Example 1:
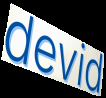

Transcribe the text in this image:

devid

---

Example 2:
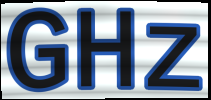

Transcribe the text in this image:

GHz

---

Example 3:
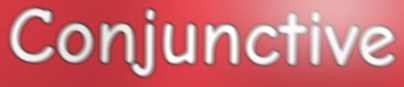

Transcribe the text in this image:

Conjunctive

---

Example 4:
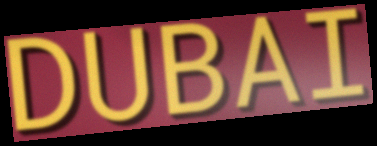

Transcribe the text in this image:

DUBAI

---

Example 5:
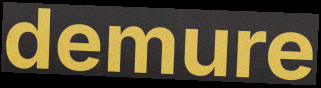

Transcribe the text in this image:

demure